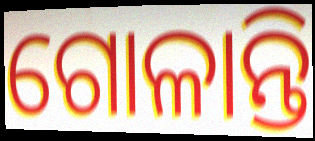
ଗୋଳାନ୍ତି